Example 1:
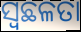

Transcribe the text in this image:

ସ୍ଵଛଳତା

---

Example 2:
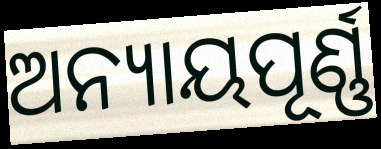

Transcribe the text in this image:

ଅନ୍ୟାୟପୂର୍ଣ୍ଣ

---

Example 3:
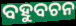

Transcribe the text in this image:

ବହୁବଚନ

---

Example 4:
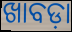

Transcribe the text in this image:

ଖାବଡ଼ା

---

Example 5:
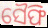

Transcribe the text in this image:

ସୈଫି